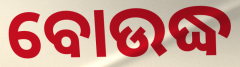
ବୋଉଦ୍ଧ